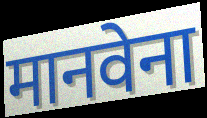
मानवेना